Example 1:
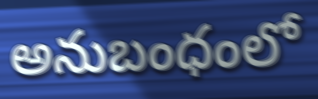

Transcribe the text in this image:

అనుబంధంలో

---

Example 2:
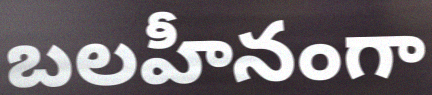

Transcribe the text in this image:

బలహీనంగా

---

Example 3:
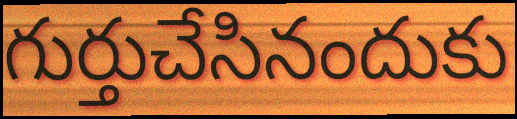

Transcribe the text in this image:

గుర్తుచేసినందుకు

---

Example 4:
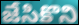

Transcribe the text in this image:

జేసికొని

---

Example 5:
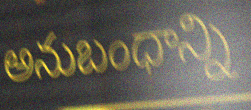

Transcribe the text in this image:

అనుబంధాన్ని